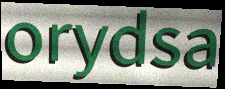
orydsa